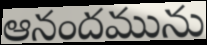
ఆనందమును